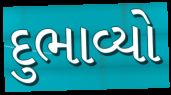
દુભાવ્યો